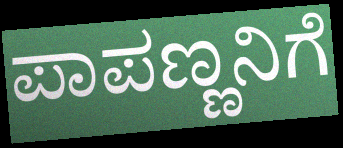
ಪಾಪಣ್ಣನಿಗೆ